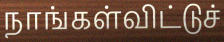
நாங்கள்விட்டுச்